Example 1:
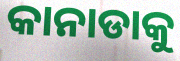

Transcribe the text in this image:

କାନାଡାକୁ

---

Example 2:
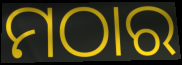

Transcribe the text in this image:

ମଠାର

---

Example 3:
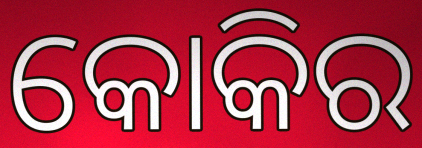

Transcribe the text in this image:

କୋକିର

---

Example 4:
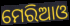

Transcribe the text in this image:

ମେରିଆଓ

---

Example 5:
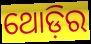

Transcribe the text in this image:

ଥୋଡ଼ିର